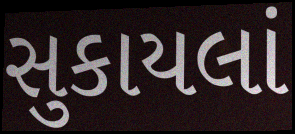
સુકાયલાં